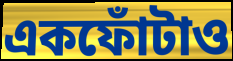
একফোঁটাও